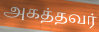
அகத்தவர்